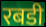
रबडी